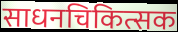
साधनचिकित्सक